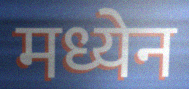
मध्येन